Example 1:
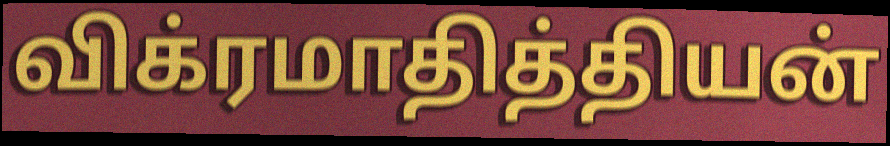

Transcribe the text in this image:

விக்ரமாதித்தியன்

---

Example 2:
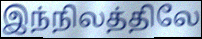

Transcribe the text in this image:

இந்நிலத்திலே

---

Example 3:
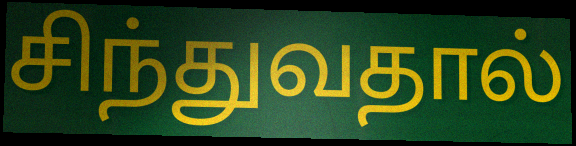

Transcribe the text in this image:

சிந்துவதால்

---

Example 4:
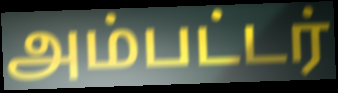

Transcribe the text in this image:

அம்பட்டர்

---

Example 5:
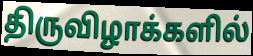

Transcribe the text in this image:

திருவிழாக்களில்